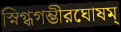
স্নিগ্ধগম্ভীরঘোষম্